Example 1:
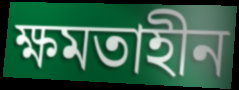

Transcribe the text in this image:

ক্ষমতাহীন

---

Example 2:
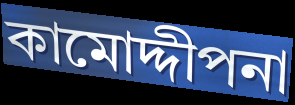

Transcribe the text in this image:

কামোদ্দীপনা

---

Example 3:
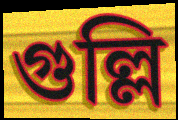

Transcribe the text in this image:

গুল্লি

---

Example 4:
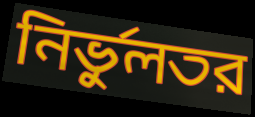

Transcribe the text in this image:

নির্ভুলতর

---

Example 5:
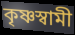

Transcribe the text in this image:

কৃষ্ণস্বামী